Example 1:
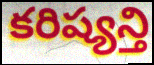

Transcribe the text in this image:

కరిష్యన్తి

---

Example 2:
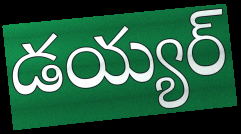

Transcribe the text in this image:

డయ్యర్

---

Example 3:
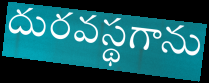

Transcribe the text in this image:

దురవస్థగాను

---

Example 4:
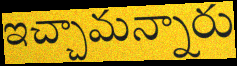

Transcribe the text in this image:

ఇచ్చామన్నారు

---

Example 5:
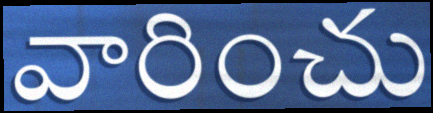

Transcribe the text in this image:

వారించు